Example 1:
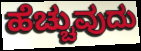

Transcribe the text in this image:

ಹೆಚ್ಚುವುದು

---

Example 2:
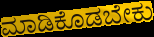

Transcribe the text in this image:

ಮಾಡಿಕೊಡಬೇಕು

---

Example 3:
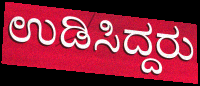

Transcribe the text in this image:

ಉಡಿಸಿದ್ದರು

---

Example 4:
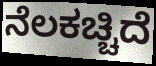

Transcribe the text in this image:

ನೆಲಕಚ್ಚಿದೆ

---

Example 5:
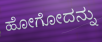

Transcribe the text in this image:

ಹೋಗೋದನ್ನು